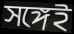
সঙ্গেই